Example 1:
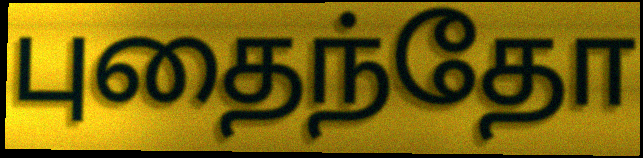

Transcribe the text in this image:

புதைந்தோ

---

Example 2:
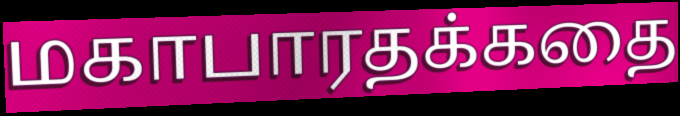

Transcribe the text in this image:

மகாபாரதக்கதை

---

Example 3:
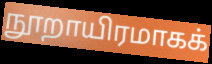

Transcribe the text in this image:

நூறாயிரமாகக்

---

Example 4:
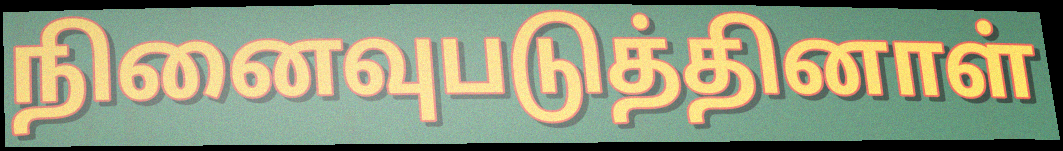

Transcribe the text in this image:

நினைவுபடுத்தினாள்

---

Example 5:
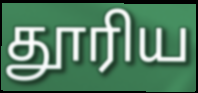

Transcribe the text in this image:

தூரிய